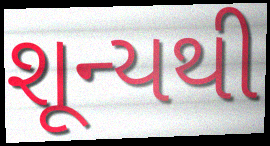
શૂન્યથી